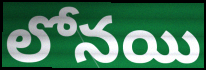
లోనయి